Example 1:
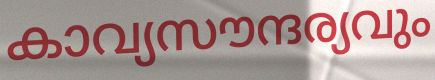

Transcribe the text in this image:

കാവ്യസൗന്ദര്യവും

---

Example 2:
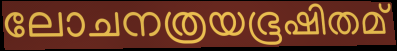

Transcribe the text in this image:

ലോചനത്രയഭൂഷിതമ്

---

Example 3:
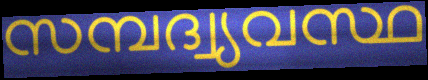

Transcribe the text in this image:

സമ്പദ്വ്യവസ്ഥ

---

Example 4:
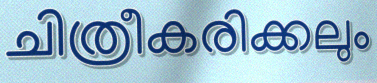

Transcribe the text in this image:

ചിത്രീകരിക്കലും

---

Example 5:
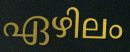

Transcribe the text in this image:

ഏഴിലം